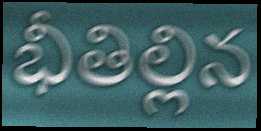
భీతిల్లిన